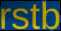
rstb